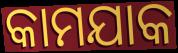
କାମଯାକ